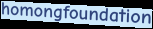
homongfoundation